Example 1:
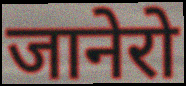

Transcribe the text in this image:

जानेरो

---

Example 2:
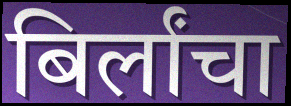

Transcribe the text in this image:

बिर्लांचा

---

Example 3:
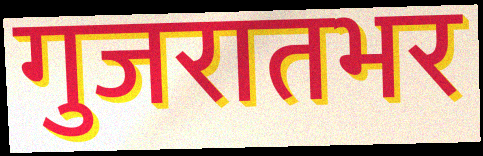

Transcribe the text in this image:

गुजरातभर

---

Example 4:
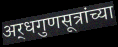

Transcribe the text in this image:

अर्धगुणसूत्रांच्या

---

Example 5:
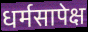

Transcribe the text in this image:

धर्मसापेक्ष